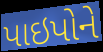
પાઇપોને